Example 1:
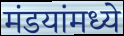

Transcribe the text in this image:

मंडयांमध्ये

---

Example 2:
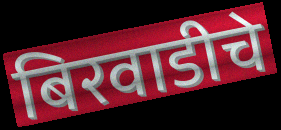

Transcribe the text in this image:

बिरवाडीचे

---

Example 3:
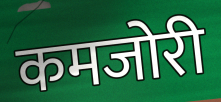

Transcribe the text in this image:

कमजोरी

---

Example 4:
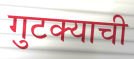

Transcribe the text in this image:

गुटक्याची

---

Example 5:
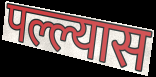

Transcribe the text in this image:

पल्ल्यास